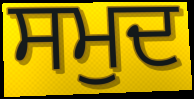
ਸਮੁਦ